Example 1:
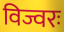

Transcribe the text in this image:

विज्वरः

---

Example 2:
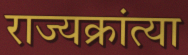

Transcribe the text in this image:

राज्यक्रांत्या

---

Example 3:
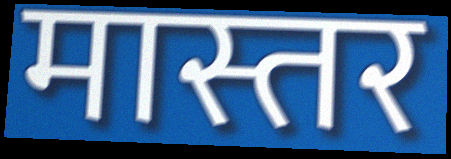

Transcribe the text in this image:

मास्तर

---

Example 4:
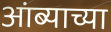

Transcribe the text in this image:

आंब्याच्या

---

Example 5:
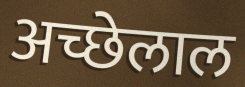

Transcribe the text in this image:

अच्छेलाल